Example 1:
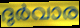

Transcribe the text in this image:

ദുർവാര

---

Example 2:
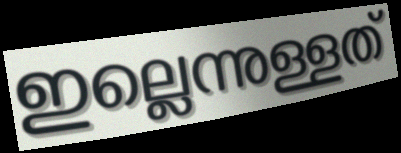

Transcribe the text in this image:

ഇല്ലെന്നുള്ളത്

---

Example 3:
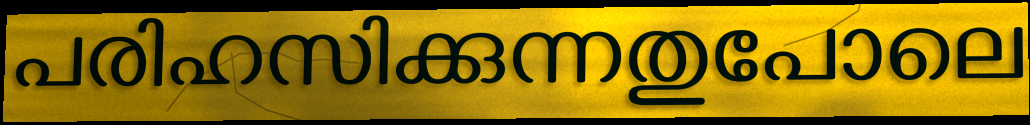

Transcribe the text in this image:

പരിഹസിക്കുന്നതുപോലെ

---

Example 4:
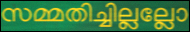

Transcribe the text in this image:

സമ്മതിച്ചില്ലല്ലോ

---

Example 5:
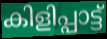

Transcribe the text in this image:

കിളിപ്പാട്ട്